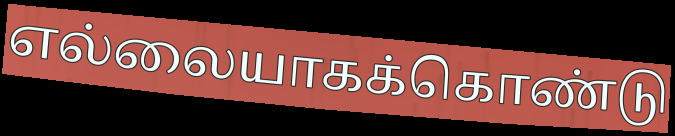
எல்லையாகக்கொண்டு